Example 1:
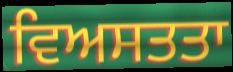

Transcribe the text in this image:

ਵਿਅਸਤਤਾ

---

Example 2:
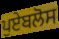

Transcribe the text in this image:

ਪੁਏਬਲੋਸ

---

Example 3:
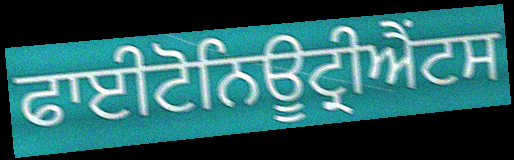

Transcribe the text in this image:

ਫਾਈਟੋਨਿਊਟ੍ਰੀਐਂਟਸ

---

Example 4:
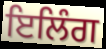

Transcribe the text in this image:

ਇਲਿੰਗ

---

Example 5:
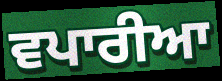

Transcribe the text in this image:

ਵਪਾਰੀਆ